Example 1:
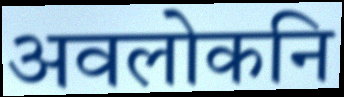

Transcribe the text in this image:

अवलोकनि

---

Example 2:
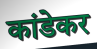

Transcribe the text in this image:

कांडेकर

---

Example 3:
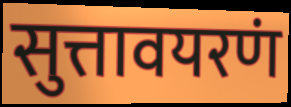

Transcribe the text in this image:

सुत्तावयरणं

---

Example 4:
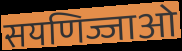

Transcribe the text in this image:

सयणिज्जाओ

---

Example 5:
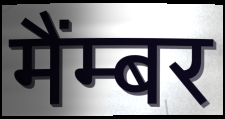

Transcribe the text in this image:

मैंम्बर